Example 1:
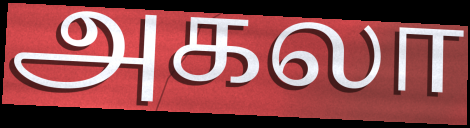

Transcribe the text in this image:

அகலா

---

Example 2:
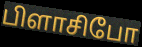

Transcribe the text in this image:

பிளாசிபோ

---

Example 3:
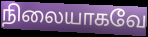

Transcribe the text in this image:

நிலையாகவே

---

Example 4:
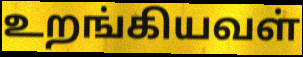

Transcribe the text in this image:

உறங்கியவள்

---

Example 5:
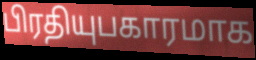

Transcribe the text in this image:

பிரதியுபகாரமாக